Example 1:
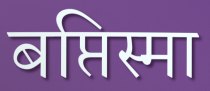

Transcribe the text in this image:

बप्तिस्मा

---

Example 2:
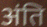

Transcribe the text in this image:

अंति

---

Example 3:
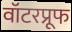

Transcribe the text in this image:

वॉटरप्रूफ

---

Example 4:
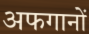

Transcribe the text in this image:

अफगानों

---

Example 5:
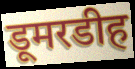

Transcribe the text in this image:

डूमरडीह